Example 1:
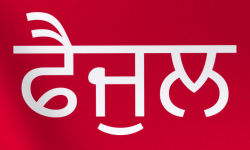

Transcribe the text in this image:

ਫੈਜੁਲ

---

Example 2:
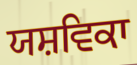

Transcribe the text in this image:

ਯਸ਼ਵਿਕਾ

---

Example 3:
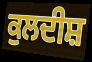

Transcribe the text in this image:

ਕੁਲਦੀਸ਼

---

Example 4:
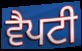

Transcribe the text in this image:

ਵੈਪਟੀ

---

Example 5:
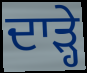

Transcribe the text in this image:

ਦਾੜ੍ਹੇ